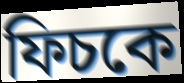
ফিচকে